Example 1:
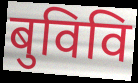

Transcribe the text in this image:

बुविवि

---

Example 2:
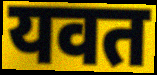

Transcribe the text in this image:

यवत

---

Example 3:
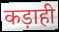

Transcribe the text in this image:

कड़ाही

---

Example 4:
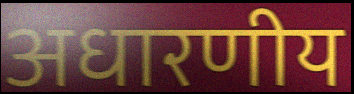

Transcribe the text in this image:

अधारणीय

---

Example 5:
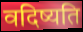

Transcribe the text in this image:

वदिष्यति